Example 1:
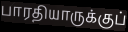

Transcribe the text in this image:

பாரதியாருக்குப்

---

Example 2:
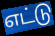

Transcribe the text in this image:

எட்டு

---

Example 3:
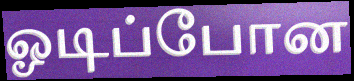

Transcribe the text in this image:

ஓடிப்போன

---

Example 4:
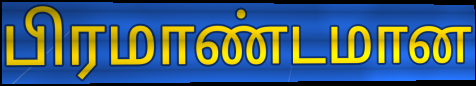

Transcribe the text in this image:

பிரமாண்டமான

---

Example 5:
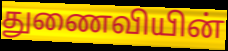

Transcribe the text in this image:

துணைவியின்